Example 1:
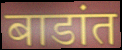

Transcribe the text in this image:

बाडांत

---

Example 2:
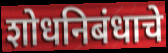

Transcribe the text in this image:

शोधनिबंधाचे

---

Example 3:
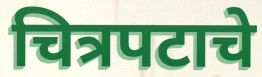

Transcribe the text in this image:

चित्रपटाचे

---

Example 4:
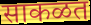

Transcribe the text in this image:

साकळत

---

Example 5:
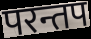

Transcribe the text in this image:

परन्तप